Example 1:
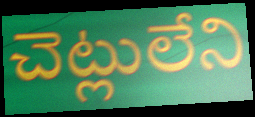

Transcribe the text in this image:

చెట్లులేని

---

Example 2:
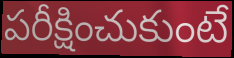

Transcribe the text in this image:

పరీక్షించుకుంటే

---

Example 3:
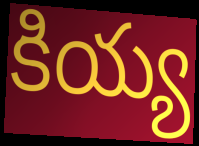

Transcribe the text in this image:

కియ్య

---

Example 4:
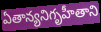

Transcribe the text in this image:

ఏతాన్యనిగృహీతాని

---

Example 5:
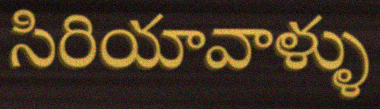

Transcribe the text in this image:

సిరియావాళ్ళు